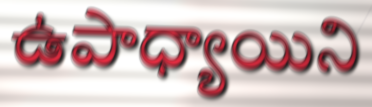
ఉపాధ్యాయిని